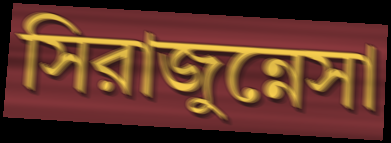
সিরাজুন্নেসা